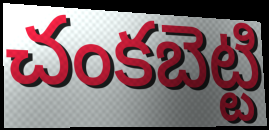
చంకబెట్టి